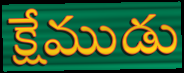
క్షేముడు